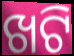
ଖଟି